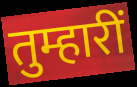
तुम्हारीं